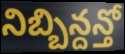
నిబ్బిన్దన్తో